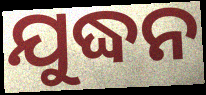
ଯୁଦ୍ଧନ